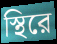
স্থিরে